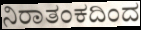
ನಿರಾತಂಕದಿಂದ